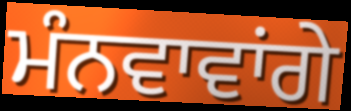
ਮੰਨਵਾਵਾਂਗੇ